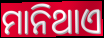
ମାନିଥାଏ